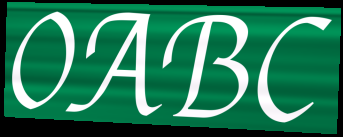
OABC